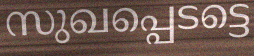
സുഖപ്പെടട്ടെ